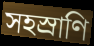
সহস্রাণি